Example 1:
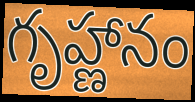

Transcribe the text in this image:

గృహ్ణానం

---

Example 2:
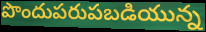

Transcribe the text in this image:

పొందుపరుపబడియున్న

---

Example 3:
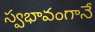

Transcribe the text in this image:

స్వభావంగానే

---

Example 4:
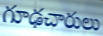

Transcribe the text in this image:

గూఢచారులు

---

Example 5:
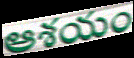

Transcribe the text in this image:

ఆశయం